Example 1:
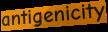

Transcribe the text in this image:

antigenicity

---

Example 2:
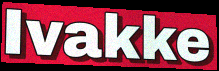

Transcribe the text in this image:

Ivakke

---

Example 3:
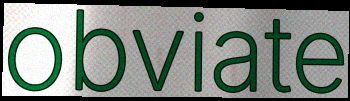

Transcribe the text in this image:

obviate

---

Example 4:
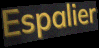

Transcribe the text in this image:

Espalier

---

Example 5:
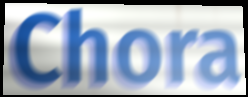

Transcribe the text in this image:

Chora